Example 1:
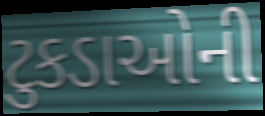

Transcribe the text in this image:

ટુકડાઓની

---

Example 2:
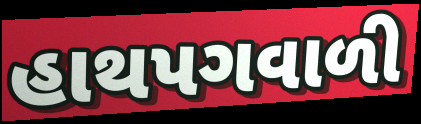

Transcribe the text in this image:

હાથપગવાળી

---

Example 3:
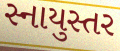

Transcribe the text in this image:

સ્નાયુસ્તર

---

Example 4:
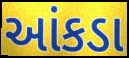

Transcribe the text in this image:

આંકડા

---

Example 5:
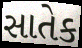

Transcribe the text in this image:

સાતેક